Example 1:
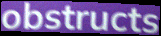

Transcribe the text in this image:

obstructs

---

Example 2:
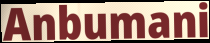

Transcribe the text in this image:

Anbumani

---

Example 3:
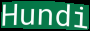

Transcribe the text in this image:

Hundi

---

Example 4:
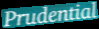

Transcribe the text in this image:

Prudential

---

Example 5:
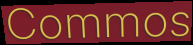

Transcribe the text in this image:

Commos